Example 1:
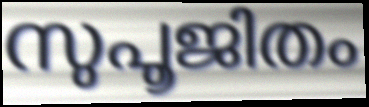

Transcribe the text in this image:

സുപൂജിതം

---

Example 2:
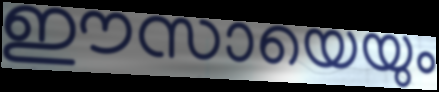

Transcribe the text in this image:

ഈസായെയും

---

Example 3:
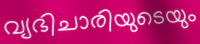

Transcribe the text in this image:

വ്യഭിചാരിയുടെയും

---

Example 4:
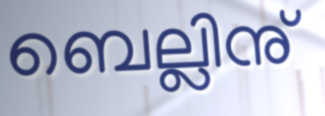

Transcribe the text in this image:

ബെല്ലിനു്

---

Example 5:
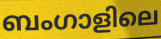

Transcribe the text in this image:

ബംഗാളിലെ